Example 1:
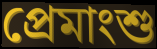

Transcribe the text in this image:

প্রেমাংশু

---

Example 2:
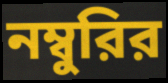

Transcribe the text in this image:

নম্বুরির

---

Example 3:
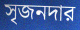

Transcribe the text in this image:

সৃজনদার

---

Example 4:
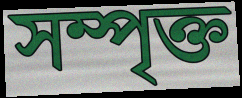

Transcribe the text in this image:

সম্পৃক্ত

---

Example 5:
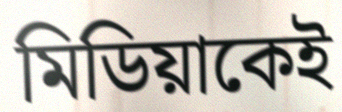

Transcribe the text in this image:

মিডিয়াকেই